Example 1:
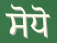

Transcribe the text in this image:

ਸੋਧੋ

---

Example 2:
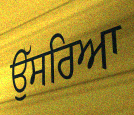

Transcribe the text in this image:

ਉੱਸਰਿਆ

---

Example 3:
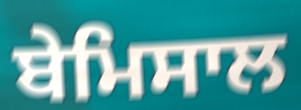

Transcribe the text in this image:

ਬੇਮਿਸਾਲ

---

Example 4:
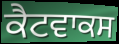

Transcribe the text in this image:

ਕੈਟਵਾਕਸ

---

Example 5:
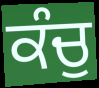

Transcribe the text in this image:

ਕੰਚੁ